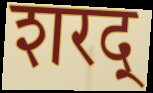
शरद्